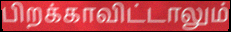
பிறக்காவிட்டாலும்